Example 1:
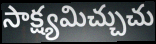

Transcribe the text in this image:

సాక్ష్యమిచ్చుచు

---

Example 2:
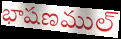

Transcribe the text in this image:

భాషణముల్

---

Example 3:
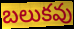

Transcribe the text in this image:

బలుకవు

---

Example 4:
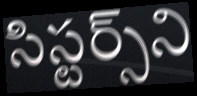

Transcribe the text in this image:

సిస్టర్స్‌ని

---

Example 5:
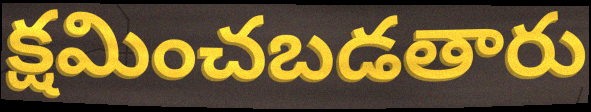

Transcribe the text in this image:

క్షమించబడతారు